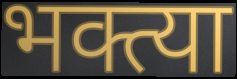
भक्त्या